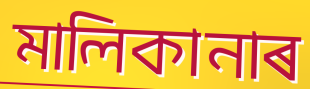
মালিকানাৰ